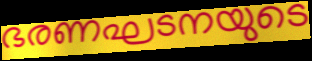
ഭരണഘടനയുടെ